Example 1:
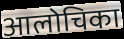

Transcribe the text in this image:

आलोचिका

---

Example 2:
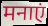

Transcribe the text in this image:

मनाएं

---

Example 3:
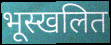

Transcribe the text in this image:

भूस्खलित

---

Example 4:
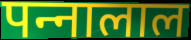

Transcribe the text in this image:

पन्नालाल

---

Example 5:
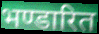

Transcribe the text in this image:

भण्डारित